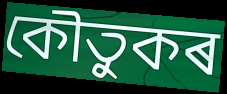
কৌতুকৰ